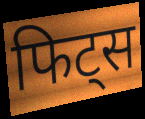
फिट्स